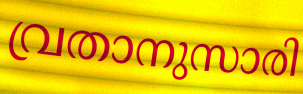
വ്രതാനുസാരി